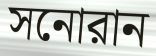
সনোরান